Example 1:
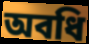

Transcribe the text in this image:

অবধি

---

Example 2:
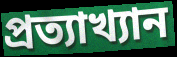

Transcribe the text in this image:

প্রত্যাখ্যান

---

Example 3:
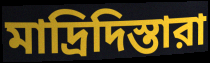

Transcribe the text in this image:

মাদ্রিদিস্তারা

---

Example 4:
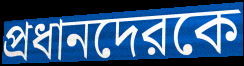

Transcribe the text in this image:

প্রধানদেরকে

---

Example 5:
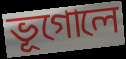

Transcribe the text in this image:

ভূগোলে